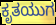
ಕೃತಯುಗ